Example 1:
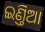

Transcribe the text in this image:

ଇଣ୍ତିଆ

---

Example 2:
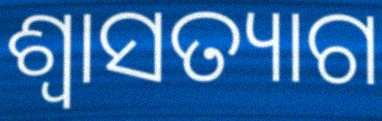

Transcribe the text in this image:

ଶ୍ବାସତ୍ୟାଗ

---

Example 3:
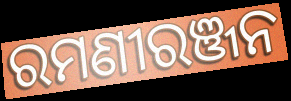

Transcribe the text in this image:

ରମଣୀରଞ୍ଜନ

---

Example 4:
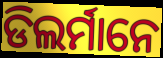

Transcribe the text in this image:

ଡିଲର୍ମାନେ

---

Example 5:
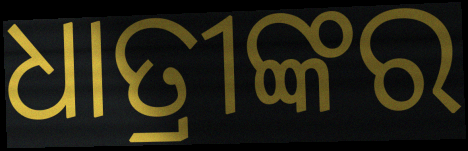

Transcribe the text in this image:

ଧାତ୍ରୀଙ୍କର